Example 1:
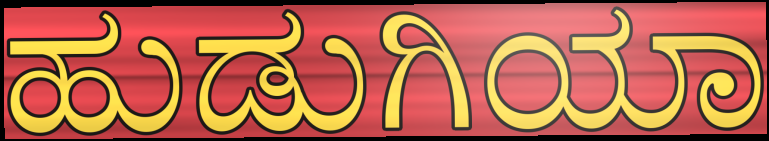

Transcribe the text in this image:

ಹುಡುಗಿಯಾ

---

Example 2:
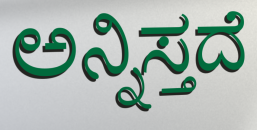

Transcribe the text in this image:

ಅನ್ನಿಸ್ತದೆ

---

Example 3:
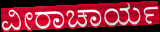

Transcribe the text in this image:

ವೀರಾಚಾರ್ಯ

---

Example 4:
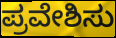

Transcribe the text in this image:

ಪ್ರವೇಶಿಸು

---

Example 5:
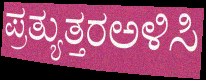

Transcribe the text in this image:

ಪ್ರತ್ಯುತ್ತರಅಳಿಸಿ